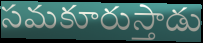
సమకూరుస్తాడు